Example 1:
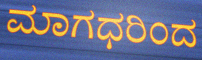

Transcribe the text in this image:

ಮಾಗಧರಿಂದ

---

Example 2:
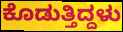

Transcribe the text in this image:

ಕೊಡುತ್ತಿದ್ದಳು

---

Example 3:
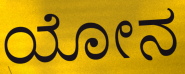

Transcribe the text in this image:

ಯೋನ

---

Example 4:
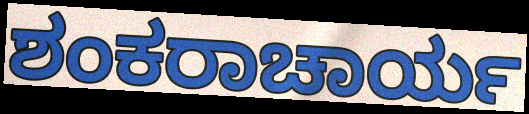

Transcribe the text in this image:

ಶಂಕರಾಚಾರ್ಯ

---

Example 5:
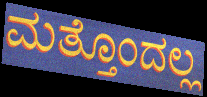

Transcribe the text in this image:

ಮತ್ತೊಂದಲ್ಲ